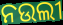
ନଉଲୀ